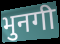
भुनगी